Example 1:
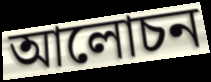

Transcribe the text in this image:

আলোচন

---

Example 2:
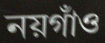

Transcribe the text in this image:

নয়গাঁও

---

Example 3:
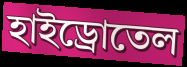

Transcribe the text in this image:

হাইড্রোতেল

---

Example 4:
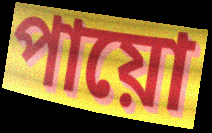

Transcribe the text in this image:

পায়ো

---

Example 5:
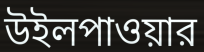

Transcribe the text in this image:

উইলপাওয়ার